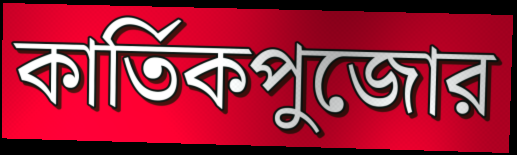
কার্তিকপুজোর